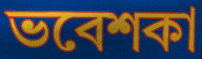
ভবেশকা